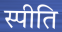
स्पीति